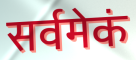
सर्वमेकं